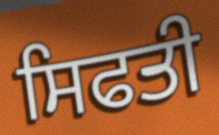
ਸਿਫਤੀ